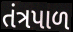
તંત્રપાળ